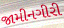
જામીનગીરી